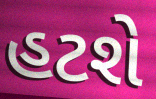
હટશે